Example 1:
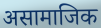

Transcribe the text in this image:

असामाजिक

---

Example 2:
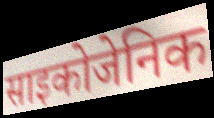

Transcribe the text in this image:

साइकोजेनिक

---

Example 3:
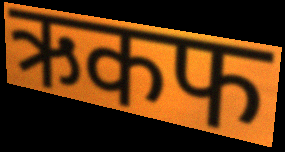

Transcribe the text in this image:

ऋकफ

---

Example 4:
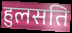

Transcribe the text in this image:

हुलसति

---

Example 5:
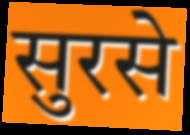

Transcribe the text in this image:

सुरसे